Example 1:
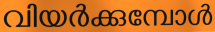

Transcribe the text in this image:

വിയർക്കുമ്പോൾ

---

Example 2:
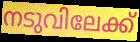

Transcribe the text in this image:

നടുവിലേക്ക്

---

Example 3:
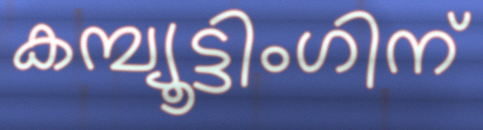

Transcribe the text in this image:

കമ്പ്യൂട്ടിംഗിന്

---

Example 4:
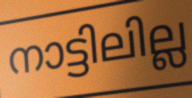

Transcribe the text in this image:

നാട്ടിലില്ല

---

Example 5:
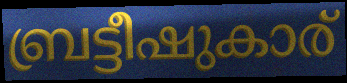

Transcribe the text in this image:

ബ്രട്ടീഷുകാര്